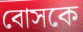
বোসকে